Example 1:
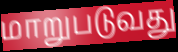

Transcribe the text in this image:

மாறுபடுவது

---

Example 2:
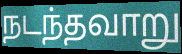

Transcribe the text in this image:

நடந்தவாறு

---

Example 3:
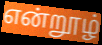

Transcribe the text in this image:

என்றூழ்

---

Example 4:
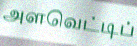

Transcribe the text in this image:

அளவெட்டிப்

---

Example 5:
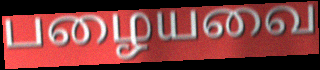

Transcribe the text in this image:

பழையவை